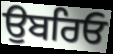
ਉਬਰਿਓ